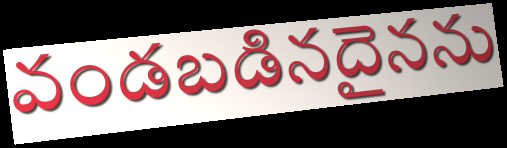
వండబడినదైనను